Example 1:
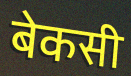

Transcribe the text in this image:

बेकसी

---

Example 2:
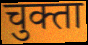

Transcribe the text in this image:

चुक्ता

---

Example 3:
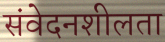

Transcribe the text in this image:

संवेदनशीलता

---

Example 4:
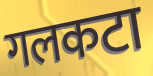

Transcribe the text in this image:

गलकटा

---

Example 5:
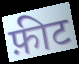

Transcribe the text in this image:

फ़ीट